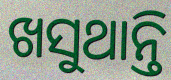
ଖସୁଥାନ୍ତି